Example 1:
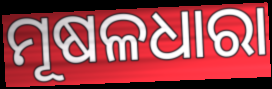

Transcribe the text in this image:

ମୂଷଳଧାରା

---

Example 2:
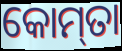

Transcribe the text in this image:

କୋମ୍‌ତା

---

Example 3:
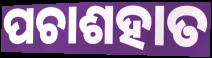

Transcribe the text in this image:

ପଚାଶହାତ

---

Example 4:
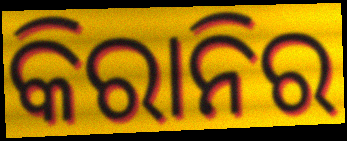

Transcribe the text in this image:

କିରାନିର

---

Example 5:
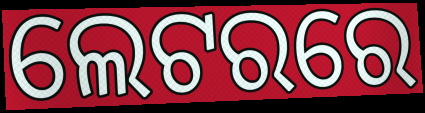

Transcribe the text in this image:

ଲେଟରରେ